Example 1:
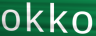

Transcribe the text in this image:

okko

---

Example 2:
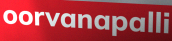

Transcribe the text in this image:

oorvanapalli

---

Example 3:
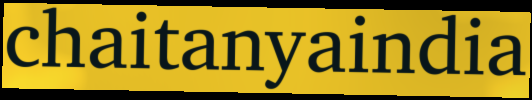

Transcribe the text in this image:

chaitanyaindia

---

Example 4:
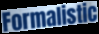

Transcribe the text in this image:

Formalistic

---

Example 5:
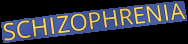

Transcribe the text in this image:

SCHIZOPHRENIA